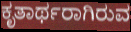
ಕೃತಾರ್ಥರಾಗಿರುವ